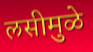
लसीमुळे